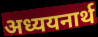
अध्ययनार्थ